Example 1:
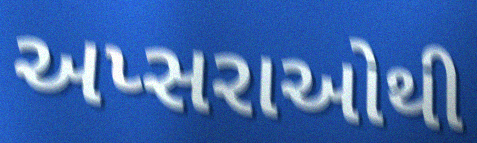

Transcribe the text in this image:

અપ્સરાઓથી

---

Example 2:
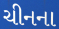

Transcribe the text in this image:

ચીનના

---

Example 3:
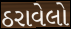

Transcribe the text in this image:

ઠરાવેલો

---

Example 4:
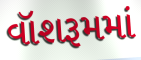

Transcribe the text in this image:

વૉશરૂમમાં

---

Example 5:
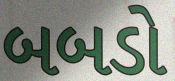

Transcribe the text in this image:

બબડો